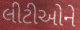
લીટીઓને